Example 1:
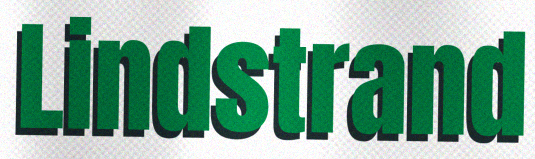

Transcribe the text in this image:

Lindstrand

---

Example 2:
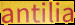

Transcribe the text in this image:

antilia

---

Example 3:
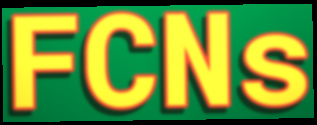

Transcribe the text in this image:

FCNs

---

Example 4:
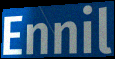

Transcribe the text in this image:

Ennil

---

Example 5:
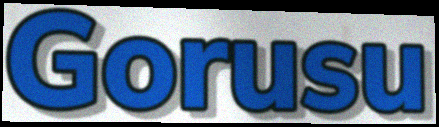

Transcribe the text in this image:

Gorusu